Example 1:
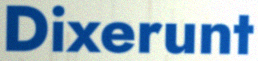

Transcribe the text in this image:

Dixerunt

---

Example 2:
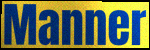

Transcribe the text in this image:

Manner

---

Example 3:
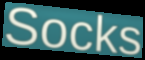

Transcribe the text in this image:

Socks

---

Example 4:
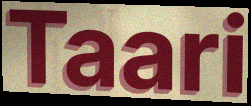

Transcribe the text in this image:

Taari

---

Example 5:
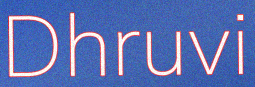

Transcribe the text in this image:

Dhruvi